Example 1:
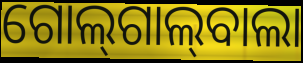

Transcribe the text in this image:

ଗୋଲ୍‍ଗାଲ୍‍ବାଲା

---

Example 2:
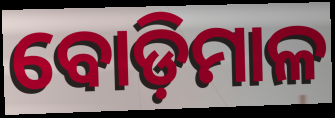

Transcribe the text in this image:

ବୋଡ଼ିମାଳ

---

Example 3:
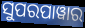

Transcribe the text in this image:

ସୁପରପାୱାର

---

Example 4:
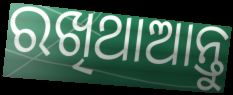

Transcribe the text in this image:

ରଖିଥାଆନ୍ତୁ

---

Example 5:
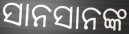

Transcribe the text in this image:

ସାନସାନଙ୍କ